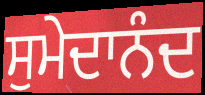
ਸੁਮੇਦਾਨੰਦ